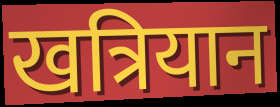
खत्रियान